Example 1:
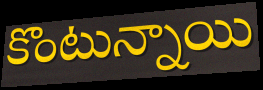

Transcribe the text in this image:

కొంటున్నాయి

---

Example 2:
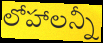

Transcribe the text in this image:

లోహాలన్నీ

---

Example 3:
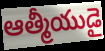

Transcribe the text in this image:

ఆత్మీయుడై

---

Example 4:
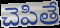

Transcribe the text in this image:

చెపితే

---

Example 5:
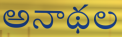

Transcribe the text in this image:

అనాథల